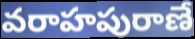
వరాహపురాణే